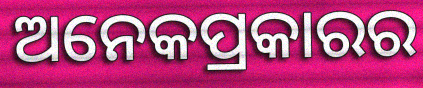
ଅନେକପ୍ରକାରର